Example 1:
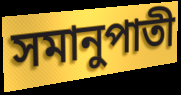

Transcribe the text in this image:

সমানুপাতী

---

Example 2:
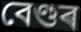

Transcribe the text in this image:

বেণ্ডৰ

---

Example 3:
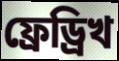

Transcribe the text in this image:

ফ্ৰেড্ৰিখ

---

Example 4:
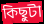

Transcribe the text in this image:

কিছুটা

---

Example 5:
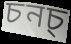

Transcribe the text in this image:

চনচ্